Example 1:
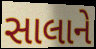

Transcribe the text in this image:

સાલાને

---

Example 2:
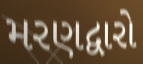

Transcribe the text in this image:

મરણદ્વારો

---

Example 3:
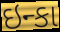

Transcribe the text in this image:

ઇન્કા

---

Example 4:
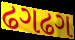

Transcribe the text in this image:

ઢગઢગ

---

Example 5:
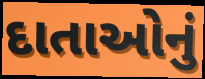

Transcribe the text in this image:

દાતાઓનું